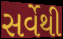
સર્વેથી